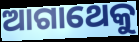
ଆଗାଥେକୁ